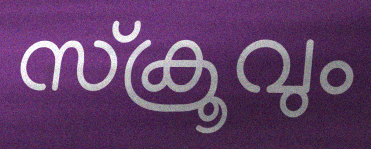
സ്ക്രൂവും